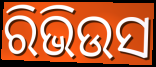
ରିଭିଉସ